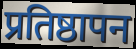
प्रतिष्ठापन